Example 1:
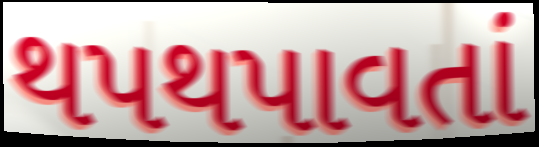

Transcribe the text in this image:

થપથપાવતાં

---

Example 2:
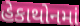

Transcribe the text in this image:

હેકાથોનમાં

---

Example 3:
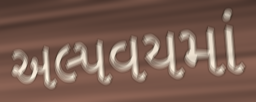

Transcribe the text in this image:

અલ્પવયમાં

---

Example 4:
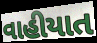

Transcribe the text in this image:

વાહીયાત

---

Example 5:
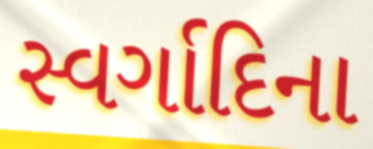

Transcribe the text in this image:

સ્વર્ગાદિના